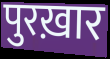
पुरख़ार